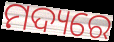
ମଦ୍ୟରେ